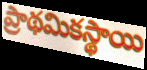
ప్రాథమికస్థాయి